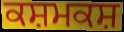
ਕਸ਼ਮਕਸ਼